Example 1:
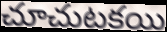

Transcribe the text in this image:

చూచుటకయి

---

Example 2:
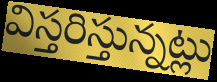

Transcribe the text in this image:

విస్తరిస్తున్నట్లు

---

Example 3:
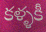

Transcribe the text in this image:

కళ్ళకీ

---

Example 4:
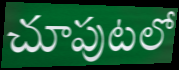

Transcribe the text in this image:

చూపుటలో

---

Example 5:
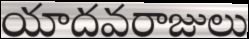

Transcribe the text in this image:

యాదవరాజులు